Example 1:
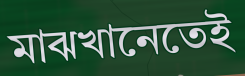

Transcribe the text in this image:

মাঝখানেতেই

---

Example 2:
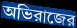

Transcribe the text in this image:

অভিরাজের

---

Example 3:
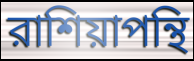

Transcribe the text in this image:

রাশিয়াপন্থি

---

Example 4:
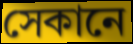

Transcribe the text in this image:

সেকানে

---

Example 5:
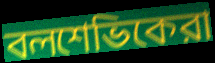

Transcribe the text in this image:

বলশেভিকেরা